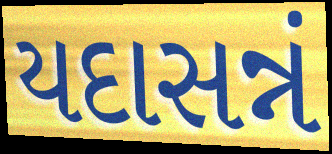
યદાસન્નં